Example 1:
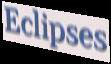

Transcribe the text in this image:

Eclipses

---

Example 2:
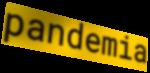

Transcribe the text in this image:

pandemia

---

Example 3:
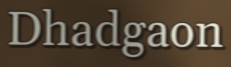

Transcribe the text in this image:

Dhadgaon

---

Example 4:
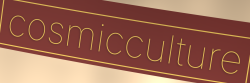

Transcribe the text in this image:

cosmicculture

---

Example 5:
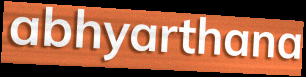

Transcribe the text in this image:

abhyarthana